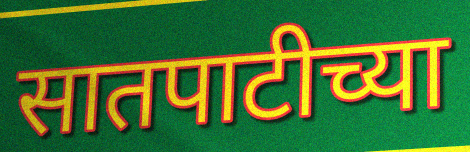
सातपाटीच्या